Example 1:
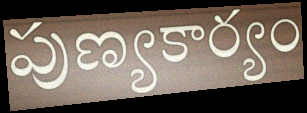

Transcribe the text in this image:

పుణ్యకార్యం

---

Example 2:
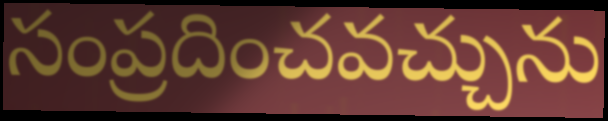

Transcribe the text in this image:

సంప్రదించవచ్చును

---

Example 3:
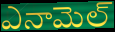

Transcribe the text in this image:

ఎనామెల్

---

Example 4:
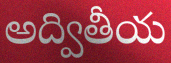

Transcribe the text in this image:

అద్వితీయ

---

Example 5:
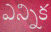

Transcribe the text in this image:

ఎన్నిక